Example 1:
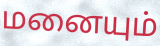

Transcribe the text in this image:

மனையும்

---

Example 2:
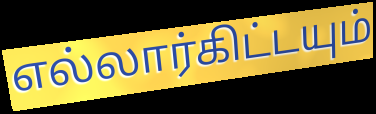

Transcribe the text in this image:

எல்லார்கிட்டயும்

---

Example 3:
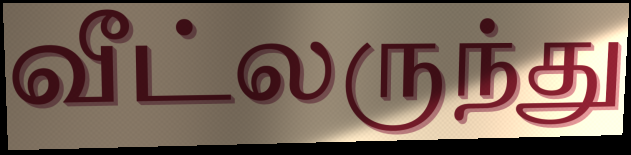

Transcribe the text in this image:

வீட்லருந்து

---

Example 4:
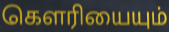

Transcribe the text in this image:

கௌரியையும்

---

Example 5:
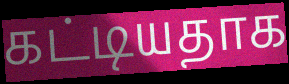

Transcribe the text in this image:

கட்டியதாக